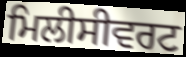
ਮਿਲੀਸੀਵਰਟ